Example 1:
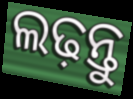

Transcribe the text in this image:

ଲଢ଼ନ୍ତୁ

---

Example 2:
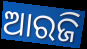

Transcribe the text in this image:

ଆରଜି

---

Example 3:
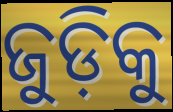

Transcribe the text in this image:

ଜୁଡ଼ିକୁ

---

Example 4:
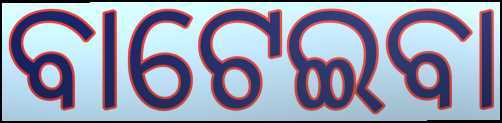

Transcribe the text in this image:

ବାଟେଇବା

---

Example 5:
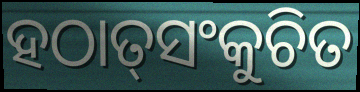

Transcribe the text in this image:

ହଠାତ୍‌ସଂକୁଚିତ